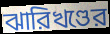
ঝারিখণ্ডের